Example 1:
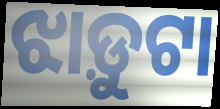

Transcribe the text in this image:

ଝାଡ଼ୁଟା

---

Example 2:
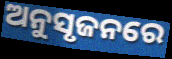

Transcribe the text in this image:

ଅନୁସୃଜନରେ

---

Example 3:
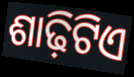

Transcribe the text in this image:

ଶାଢ଼ିଟିଏ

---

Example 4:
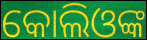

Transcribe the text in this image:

କୋଲିଓଙ୍କ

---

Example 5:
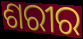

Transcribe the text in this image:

ଶରୀର